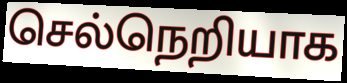
செல்நெறியாக